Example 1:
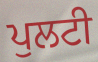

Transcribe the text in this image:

ਪੁਲਟੀ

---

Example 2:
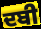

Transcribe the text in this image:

ਦਬੀ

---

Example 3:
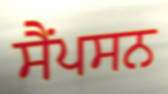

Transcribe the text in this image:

ਸੈਂਪਸਨ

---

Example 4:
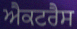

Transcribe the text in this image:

ਐਕਟਰੈਸ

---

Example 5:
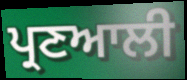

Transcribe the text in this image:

ਪ੍ਰਣਆਲੀ